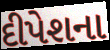
દીપેશના